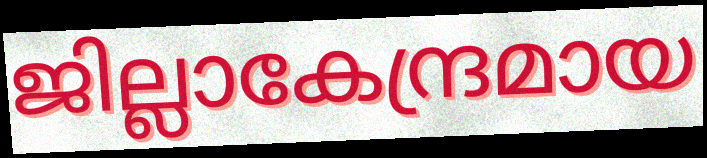
ജില്ലാകേന്ദ്രമായ